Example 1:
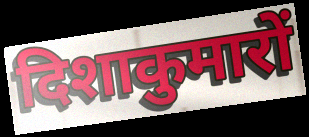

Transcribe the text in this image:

दिशाकुमारों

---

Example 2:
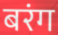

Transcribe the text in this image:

बरंग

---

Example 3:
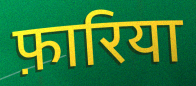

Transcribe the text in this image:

फ़ारिया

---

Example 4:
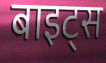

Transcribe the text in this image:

बाइट्स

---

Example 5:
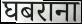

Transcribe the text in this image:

घबराना